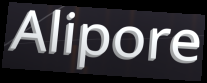
Alipore